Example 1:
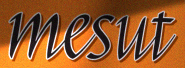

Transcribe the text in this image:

mesut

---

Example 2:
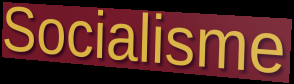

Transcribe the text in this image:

Socialisme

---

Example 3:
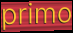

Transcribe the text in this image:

primo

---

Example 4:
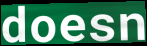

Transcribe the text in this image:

doesn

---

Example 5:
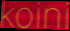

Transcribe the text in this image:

koini